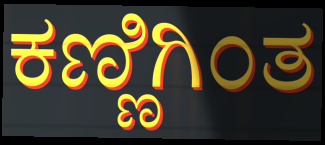
ಕಣ್ಣಿಗಿಂತ